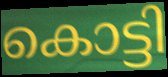
കൊട്ടി